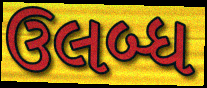
ઉલબ્ધ